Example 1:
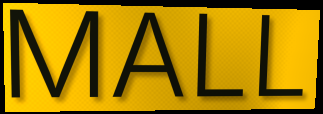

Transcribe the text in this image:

MALL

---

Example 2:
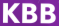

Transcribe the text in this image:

KBB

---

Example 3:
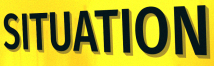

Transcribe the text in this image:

SITUATION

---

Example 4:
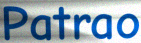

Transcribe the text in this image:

Patrao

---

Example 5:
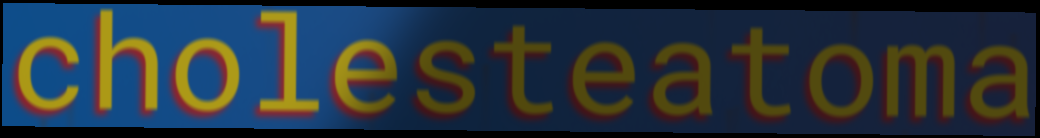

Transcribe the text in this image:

cholesteatoma